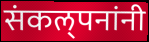
संकल्पनांनी